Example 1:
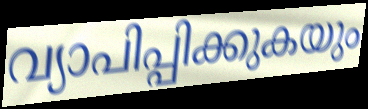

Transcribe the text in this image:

വ്യാപിപ്പിക്കുകയും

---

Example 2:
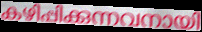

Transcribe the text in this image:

കഴിപ്പിക്കുന്നവനായി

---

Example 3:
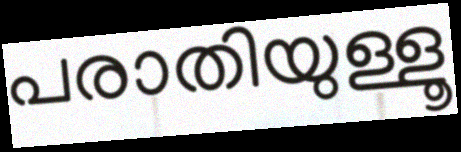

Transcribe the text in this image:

പരാതിയുള്ളൂ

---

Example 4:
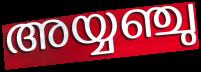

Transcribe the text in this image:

അയ്യഞ്ചു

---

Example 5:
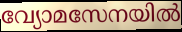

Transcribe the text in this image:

വ്യോമസേനയിൽ